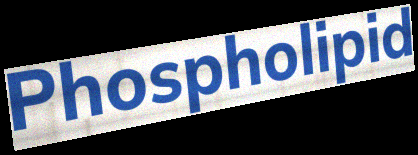
Phospholipid